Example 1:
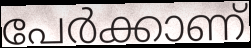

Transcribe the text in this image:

പേർക്കാണ്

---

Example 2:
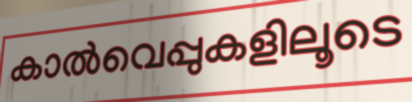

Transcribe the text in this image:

കാൽവെപ്പുകളിലൂടെ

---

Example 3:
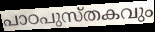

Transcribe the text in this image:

പാഠപുസ്തകവും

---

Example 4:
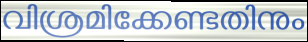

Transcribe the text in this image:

വിശ്രമിക്കേണ്ടതിനും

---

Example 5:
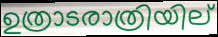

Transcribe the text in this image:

ഉത്രാടരാത്രിയില്